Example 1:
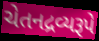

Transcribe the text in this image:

ચેતનદ્રવ્યરૂપે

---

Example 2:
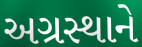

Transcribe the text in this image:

અગ્રસ્થાને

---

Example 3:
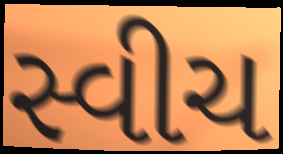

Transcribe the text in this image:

સ્વીચ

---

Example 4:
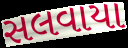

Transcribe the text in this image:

સલવાયા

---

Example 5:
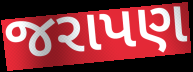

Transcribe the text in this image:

જરાપણ